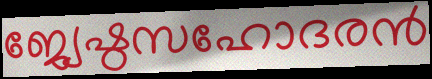
ജ്യേഷ്ഠസഹോദരൻ